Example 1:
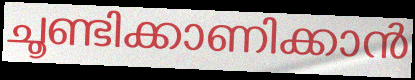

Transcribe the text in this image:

ചൂണ്ടിക്കാണിക്കാൻ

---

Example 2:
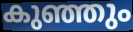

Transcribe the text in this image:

കുഞ്ഞും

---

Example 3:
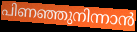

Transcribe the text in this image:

പിണഞ്ഞുനിന്നാൻ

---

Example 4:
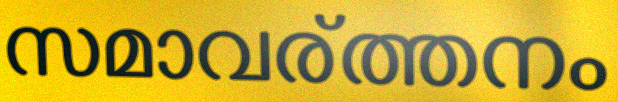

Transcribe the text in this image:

സമാവര്ത്തനം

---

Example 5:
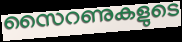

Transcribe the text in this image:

സൈറണുകളുടെ